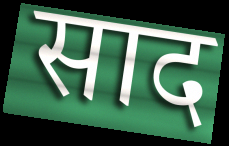
साद